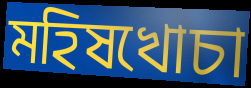
মহিষখোচা